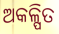
ଅକଳ୍ପିତ